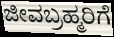
ಜೀವಬ್ರಹ್ಮರಿಗೆ